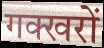
गक्खरों